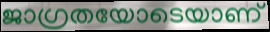
ജാഗ്രതയോടെയാണ്